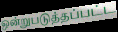
ஒன்றுபடுத்தப்பட்ட